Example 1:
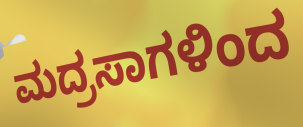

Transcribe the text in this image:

ಮದ್ರಸಾಗಳಿಂದ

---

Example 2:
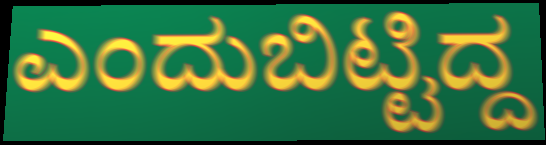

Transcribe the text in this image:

ಎಂದುಬಿಟ್ಟಿದ್ದ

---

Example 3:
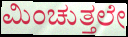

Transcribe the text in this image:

ಮಿಂಚುತ್ತಲೇ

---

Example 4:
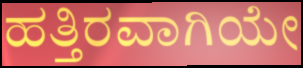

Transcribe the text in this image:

ಹತ್ತಿರವಾಗಿಯೇ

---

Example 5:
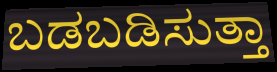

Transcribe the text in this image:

ಬಡಬಡಿಸುತ್ತಾ